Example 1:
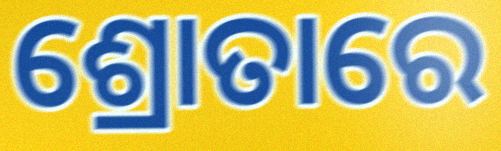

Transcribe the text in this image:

ଶ୍ରୋତାରେ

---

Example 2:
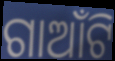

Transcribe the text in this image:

ଗାଆଁଟି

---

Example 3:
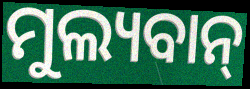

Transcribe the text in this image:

ମୁଲ୍ୟବାନ୍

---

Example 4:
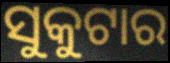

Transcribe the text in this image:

ସୁକୁଟାର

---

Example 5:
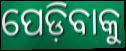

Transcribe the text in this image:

ପେଡ଼ିବାକୁ